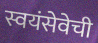
स्वयंसेवेची